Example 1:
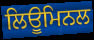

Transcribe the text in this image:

ਲਿਊਮਿਨਲ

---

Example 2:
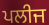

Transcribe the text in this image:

ਪਲੀਜ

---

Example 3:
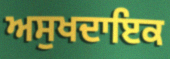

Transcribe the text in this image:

ਅਸੁਖਦਾਇਕ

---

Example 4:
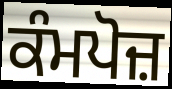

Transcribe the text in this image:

ਕੰਮਪੋਜ਼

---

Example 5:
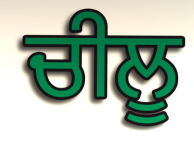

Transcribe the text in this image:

ਚੀਲੂ